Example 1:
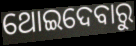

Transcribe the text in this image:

ଥୋଇଦେବାରୁ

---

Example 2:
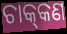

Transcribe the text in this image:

ଚାକ୍‌କଣ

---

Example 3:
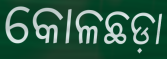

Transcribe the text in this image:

କୋଳଛଡ଼ା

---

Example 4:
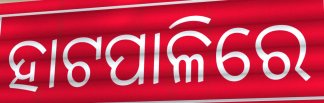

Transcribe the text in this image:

ହାଟପାଳିରେ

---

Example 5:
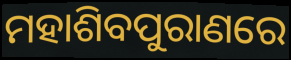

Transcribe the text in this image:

ମହାଶିବପୁରାଣରେ